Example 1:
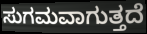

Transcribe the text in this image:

ಸುಗಮವಾಗುತ್ತದೆ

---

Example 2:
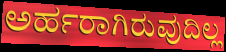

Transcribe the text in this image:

ಅರ್ಹರಾಗಿರುವುದಿಲ್ಲ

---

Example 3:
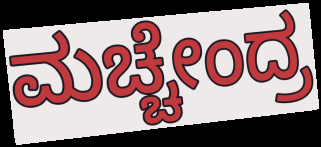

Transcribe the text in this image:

ಮಚ್ಚೇಂದ್ರ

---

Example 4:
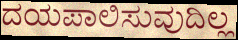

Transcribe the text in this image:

ದಯಪಾಲಿಸುವುದಿಲ್ಲ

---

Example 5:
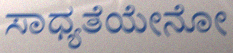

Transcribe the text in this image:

ಸಾಧ್ಯತೆಯೇನೋ